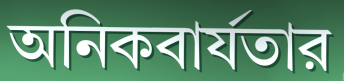
অনিকবার্যতার